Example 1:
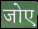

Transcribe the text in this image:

जोए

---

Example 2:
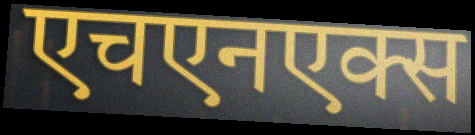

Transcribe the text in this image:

एचएनएक्स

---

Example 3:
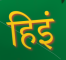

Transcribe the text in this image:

हिइं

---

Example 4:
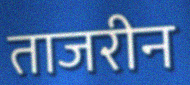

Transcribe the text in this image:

ताजरीन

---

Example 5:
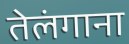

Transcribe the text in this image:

तेलंगाना